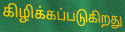
கிழிக்கப்படுகிறது